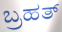
ಬ್ರಹತ್